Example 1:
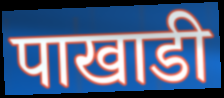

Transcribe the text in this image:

पाखाडी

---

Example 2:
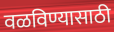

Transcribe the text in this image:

वळविण्यासाठी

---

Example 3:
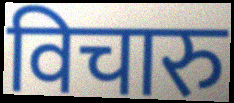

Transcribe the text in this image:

विचारु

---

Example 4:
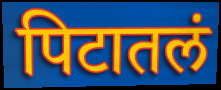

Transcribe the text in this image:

पिटातलं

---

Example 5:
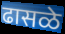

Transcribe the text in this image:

ढासळे